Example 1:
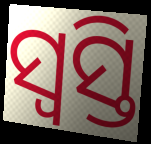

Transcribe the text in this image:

ସ୍ଵସ୍ତି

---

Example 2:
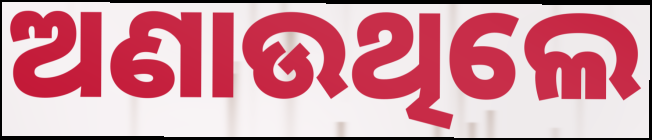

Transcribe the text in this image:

ଅଣାଉଥିଲେ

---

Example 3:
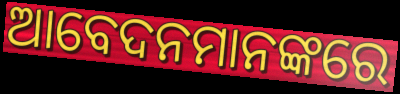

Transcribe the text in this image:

ଆବେଦନମାନଙ୍କରେ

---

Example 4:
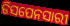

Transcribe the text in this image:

ଡିସପେନସାରୀ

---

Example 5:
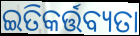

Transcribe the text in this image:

ଇତିକର୍ତ୍ତବ୍ୟତା